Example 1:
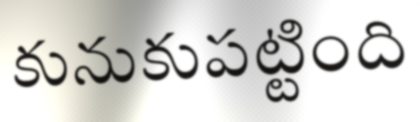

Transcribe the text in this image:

కునుకుపట్టింది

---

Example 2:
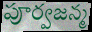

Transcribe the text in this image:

పూర్వజన్మ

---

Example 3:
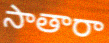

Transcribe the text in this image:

సాతారా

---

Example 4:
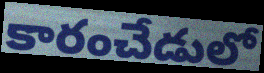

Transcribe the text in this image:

కారంచేడులో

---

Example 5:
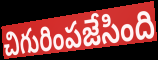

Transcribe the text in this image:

చిగురింపజేసింది